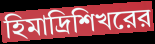
হিমাদ্রিশিখরের